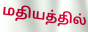
மதியத்தில்